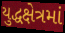
યુદ્ધક્ષેત્રમાં